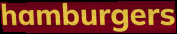
hamburgers